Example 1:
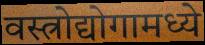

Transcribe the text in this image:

वस्त्रोद्योगामध्ये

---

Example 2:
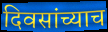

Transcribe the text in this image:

दिवसांच्याच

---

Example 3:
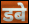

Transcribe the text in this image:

डबे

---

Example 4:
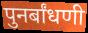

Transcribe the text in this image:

पुनर्बांधणी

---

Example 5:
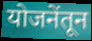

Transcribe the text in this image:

योजनेंतून